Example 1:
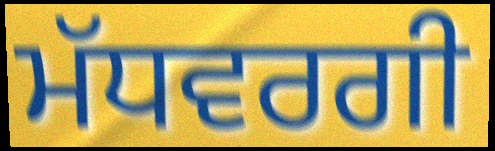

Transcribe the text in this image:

ਮੱਧਵਰਗੀ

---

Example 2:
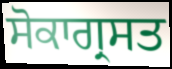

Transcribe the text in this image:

ਸੋਕਾਗ੍ਰਸਤ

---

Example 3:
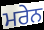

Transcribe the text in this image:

ਮਰੇਨ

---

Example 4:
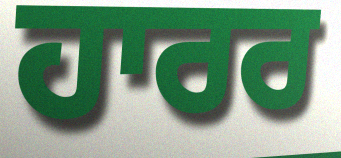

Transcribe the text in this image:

ਹਾਰਰ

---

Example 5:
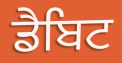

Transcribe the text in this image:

ਡੈਬਿਟ